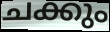
ചക്കും